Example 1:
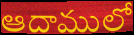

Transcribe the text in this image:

ఆదాములో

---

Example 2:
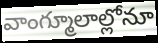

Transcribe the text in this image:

వాంగ్మూలాల్లోనూ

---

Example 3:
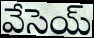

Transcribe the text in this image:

వేసెయ్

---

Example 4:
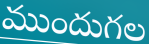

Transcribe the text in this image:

ముందుగల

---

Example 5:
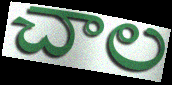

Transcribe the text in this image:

చాల